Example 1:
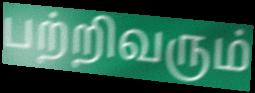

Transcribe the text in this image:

பற்றிவரும்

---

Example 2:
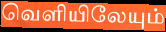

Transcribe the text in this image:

வெளியிலேயும்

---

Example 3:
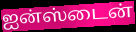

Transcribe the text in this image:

ஐன்ஸ்டைன்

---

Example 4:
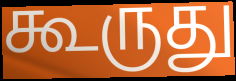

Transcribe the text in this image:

கூருது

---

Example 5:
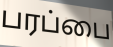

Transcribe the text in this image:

பரப்பை